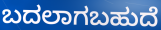
ಬದಲಾಗಬಹುದೆ